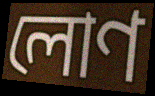
লোণ